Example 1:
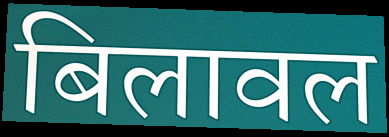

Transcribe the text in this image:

बिलावल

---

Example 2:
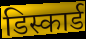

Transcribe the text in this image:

डिस्कार्ड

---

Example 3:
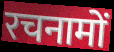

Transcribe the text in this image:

रचनामों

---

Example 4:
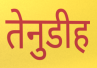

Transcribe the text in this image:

तेनुडीह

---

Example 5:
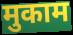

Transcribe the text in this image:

मुकाम